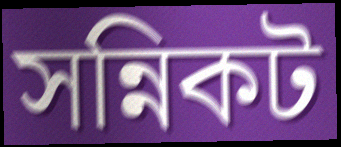
সন্নিকট